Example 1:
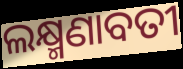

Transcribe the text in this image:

ଲକ୍ଷ୍ମଣାବତୀ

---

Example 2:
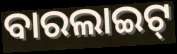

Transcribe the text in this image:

ବାରଲାଇଟ୍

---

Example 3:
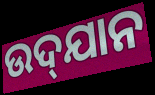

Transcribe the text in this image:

ଉଦ୍‌ଯାନ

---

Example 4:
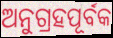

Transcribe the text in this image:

ଅନୁଗ୍ରହପୂର୍ବକ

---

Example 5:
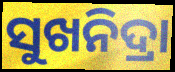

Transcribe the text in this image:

ସୁଖନିଦ୍ରା